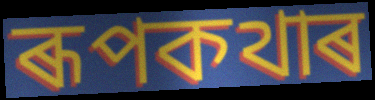
ৰূপকথাৰ